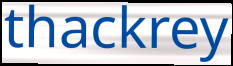
thackrey